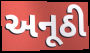
અનૂઠી